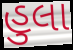
હુલા